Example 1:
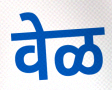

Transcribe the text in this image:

वेळ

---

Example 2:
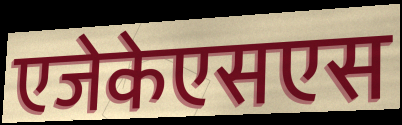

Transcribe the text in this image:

एजेकेएसएस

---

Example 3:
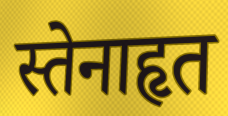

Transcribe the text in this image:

स्तेनाहृत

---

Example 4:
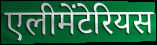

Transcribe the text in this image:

एलीमेंटेरियस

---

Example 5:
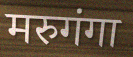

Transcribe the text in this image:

मरुगंगा